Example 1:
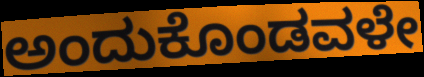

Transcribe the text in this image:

ಅಂದುಕೊಂಡವಳೇ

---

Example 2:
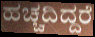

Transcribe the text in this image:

ಹಚ್ಚದಿದ್ದರೆ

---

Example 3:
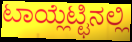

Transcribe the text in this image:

ಟಾಯ್ಲೆಟ್ಟಿನಲ್ಲಿ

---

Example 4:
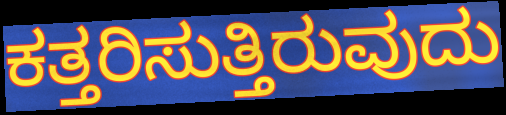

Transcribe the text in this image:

ಕತ್ತರಿಸುತ್ತಿರುವುದು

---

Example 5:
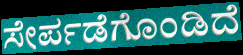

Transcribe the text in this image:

ಸೇರ್ಪಡೆಗೊಂಡಿದೆ